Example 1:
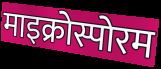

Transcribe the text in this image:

माइक्रोस्पोरम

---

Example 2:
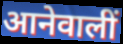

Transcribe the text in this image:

आनेवालीं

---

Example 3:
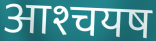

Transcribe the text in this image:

आश्चयष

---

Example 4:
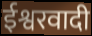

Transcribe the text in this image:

ईश्वरवादी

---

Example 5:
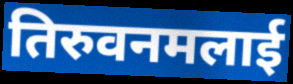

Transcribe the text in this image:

तिरुवनमलाई